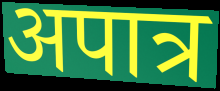
अपात्र